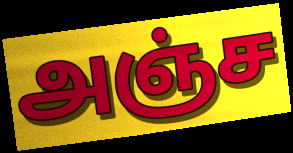
அஞ்ச